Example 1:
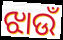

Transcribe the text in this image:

ଝାଉଁ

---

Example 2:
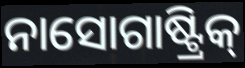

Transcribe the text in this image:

ନାସୋଗାଷ୍ଟ୍ରିକ୍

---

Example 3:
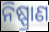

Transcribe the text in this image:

ନିଷ୍ପ୍ରାଣ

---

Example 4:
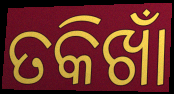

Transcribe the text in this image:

ତକିଖାଁ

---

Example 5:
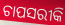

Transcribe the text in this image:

ଚାପସରୀକି